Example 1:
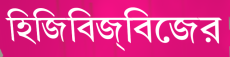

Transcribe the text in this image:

হিজিবিজ্‌বিজের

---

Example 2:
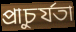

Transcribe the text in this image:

প্রাচুর্যতা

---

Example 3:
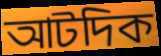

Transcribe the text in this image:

আটদিক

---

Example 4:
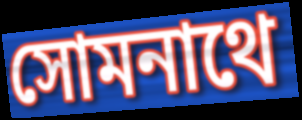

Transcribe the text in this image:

সোমনাথে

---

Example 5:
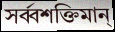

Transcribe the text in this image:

সর্ব্বশক্তিমান্